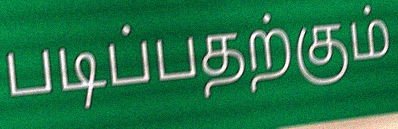
படிப்பதற்கும்